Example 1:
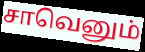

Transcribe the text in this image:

சாவெனும்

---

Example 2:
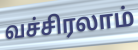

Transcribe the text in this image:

வச்சிரலாம்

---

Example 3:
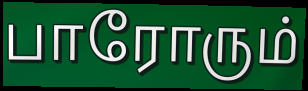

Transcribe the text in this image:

பாரோரும்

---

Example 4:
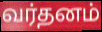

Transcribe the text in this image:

வர்தனம்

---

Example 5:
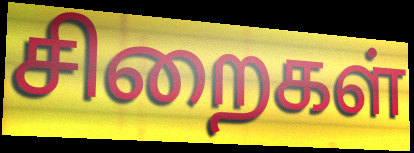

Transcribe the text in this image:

சிறைகள்